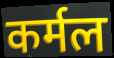
कर्मल